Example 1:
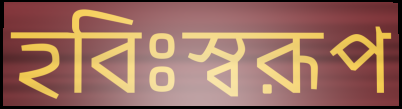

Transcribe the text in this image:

হবিঃস্বরূপ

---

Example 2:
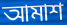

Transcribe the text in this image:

আমাশ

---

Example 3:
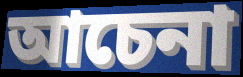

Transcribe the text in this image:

আচেনা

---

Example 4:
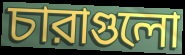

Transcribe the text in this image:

চারাগুলো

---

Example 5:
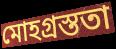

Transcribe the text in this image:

মোহগ্রস্ততা